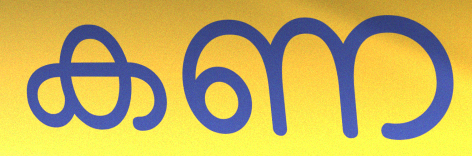
കണ